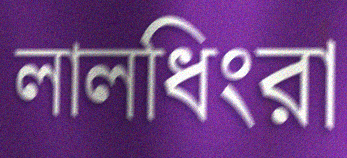
লালধিংরা